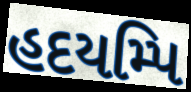
હદયમ્પિ